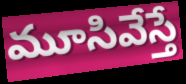
మూసివేస్తే